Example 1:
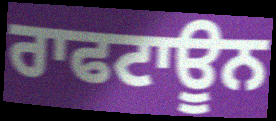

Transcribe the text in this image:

ਰਾਫਟਾਊਨ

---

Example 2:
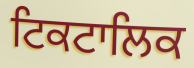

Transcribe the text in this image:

ਟਿਕਟਾਲਿਕ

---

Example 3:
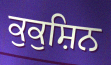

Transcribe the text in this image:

ਕੁਕੁਸ਼ਿਨ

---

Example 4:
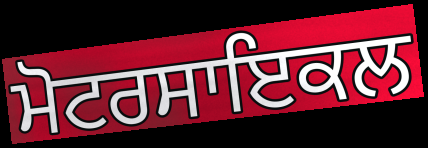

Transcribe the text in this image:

ਮੋਟਰਸਾਇਕਲ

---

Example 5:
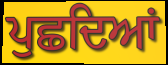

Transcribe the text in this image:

ਪੁਛਦਿਆਂ